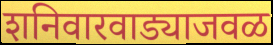
शनिवारवाड्याजवळ